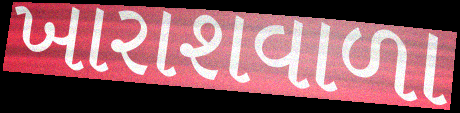
ખારાશવાળા